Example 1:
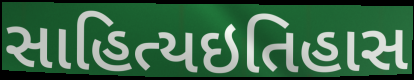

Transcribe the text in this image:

સાહિત્યઇતિહાસ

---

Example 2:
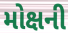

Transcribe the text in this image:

મોક્ષની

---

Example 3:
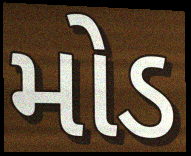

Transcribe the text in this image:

મોડ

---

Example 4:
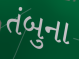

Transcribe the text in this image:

તંબુના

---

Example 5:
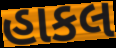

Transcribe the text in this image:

હાકલ